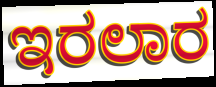
ಇರಲಾರ